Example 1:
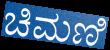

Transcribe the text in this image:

ಚಿಮಣಿ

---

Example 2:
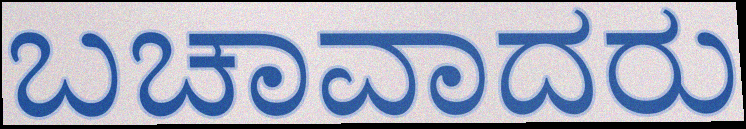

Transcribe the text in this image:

ಬಚಾವಾದರು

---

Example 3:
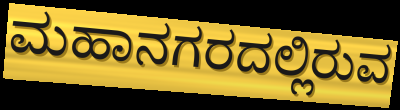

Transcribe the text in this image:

ಮಹಾನಗರದಲ್ಲಿರುವ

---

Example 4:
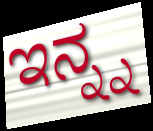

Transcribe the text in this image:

ಇನ್ನ್ನ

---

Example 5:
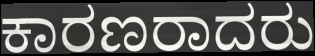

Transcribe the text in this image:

ಕಾರಣರಾದರು